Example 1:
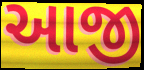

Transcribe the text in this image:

આજી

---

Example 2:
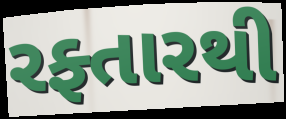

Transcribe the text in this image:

રફ્તારથી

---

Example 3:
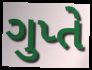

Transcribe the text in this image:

ગુપ્તે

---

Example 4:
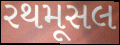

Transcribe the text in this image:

રથમૂસલ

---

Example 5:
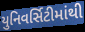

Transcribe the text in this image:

યુનિવર્સિટીમાંથી